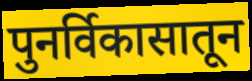
पुनर्विकासातून